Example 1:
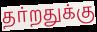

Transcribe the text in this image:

தர்றதுக்கு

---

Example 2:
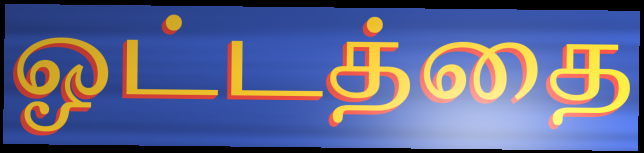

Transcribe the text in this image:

ஓட்டத்தை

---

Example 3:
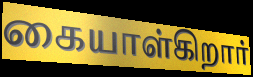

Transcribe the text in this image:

கையாள்கிறார்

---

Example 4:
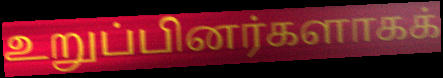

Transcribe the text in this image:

உறுப்பினர்களாகக்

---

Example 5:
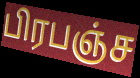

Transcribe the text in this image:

பிரபஞ்ச